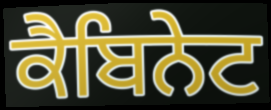
ਕੈਬਿਨੇਟ